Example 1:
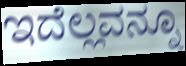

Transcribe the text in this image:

ಇದೆಲ್ಲವನ್ನೂ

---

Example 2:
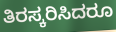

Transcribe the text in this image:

ತಿರಸ್ಕರಿಸಿದರೂ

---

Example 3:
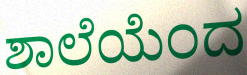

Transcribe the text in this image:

ಶಾಲೆಯೆಂದ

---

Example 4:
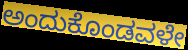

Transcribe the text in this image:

ಅಂದುಕೊಂಡವಳೇ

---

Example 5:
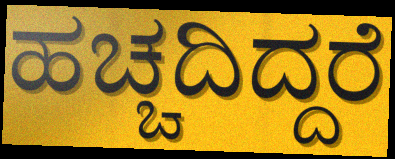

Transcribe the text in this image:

ಹಚ್ಚದಿದ್ದರೆ